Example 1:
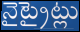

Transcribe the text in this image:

నైట్రైట్లు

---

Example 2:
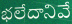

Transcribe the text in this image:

భలేదానివే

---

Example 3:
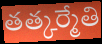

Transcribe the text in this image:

తత్కర్మేతి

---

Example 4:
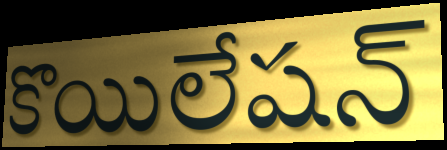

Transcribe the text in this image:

కొయిలేషన్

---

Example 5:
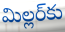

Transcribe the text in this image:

మిల్లర్‌కు